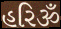
હરિૐ